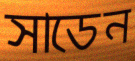
সাডেন